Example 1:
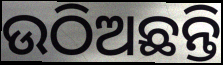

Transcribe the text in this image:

ଉଠିଅଛନ୍ତି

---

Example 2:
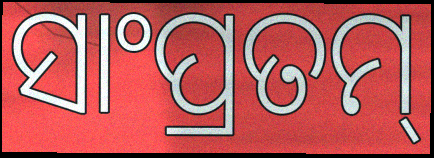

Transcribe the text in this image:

ସାଂପ୍ରତମ୍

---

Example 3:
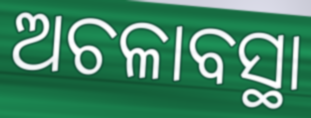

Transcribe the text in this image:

ଅଚଳାବସ୍ଥା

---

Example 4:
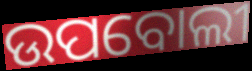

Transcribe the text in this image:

ଉପବୋଲୀ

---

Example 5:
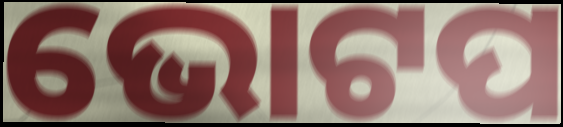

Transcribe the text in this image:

ଭୋଟପ